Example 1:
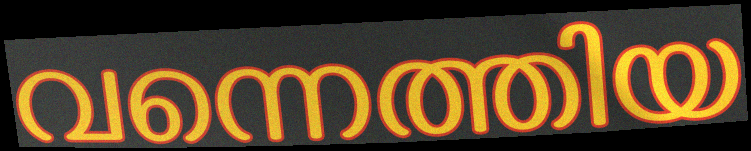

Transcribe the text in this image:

വന്നെത്തിയ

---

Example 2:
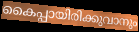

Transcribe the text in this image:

കൈപ്പായിരിക്കുവാനും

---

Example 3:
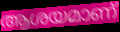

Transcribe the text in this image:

ആശയമാണ്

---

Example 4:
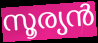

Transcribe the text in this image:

സൂര്യൻ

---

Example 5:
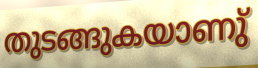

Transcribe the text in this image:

തുടങ്ങുകയാണു്